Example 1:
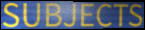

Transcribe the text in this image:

SUBJECTS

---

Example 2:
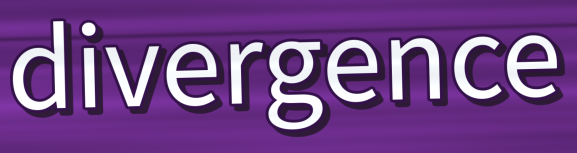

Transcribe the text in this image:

divergence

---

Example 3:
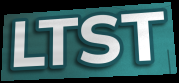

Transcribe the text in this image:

LTST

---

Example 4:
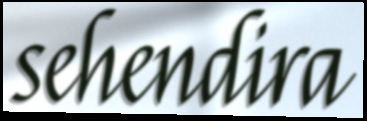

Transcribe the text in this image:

sehendira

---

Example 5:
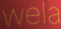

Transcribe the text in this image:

wela